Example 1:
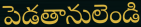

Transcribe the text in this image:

పెడతానులెండి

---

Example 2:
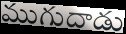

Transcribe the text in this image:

ముగుదాడు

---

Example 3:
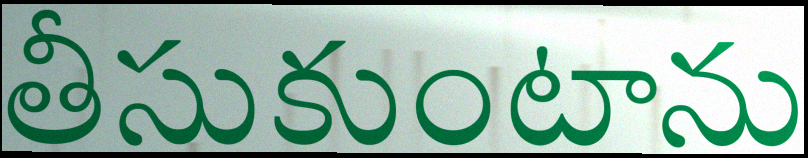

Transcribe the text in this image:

తీసుకుంటాను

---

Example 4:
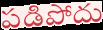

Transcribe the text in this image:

పడిపోదు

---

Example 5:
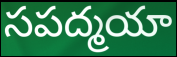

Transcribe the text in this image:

సపద్మయా